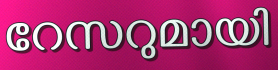
റേസറുമായി